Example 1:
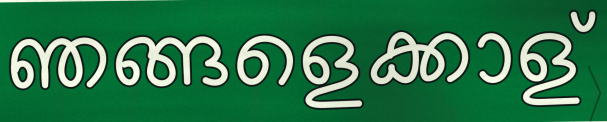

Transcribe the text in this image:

ഞങ്ങളെക്കാള്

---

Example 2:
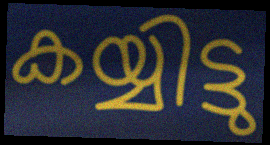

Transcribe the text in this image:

കയ്യിട്ടു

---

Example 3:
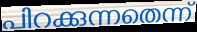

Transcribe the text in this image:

പിറക്കുന്നതെന്ന്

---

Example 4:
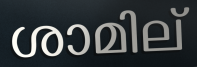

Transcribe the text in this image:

ശാമില്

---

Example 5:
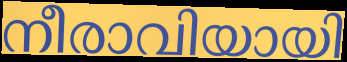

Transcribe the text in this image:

നീരാവിയായി